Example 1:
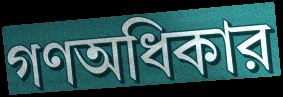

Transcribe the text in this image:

গণঅধিকার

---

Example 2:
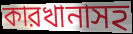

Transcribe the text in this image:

কারখানাসহ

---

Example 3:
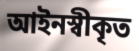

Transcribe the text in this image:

আইনস্বীকৃত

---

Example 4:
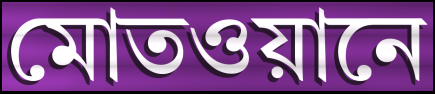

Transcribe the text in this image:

মোতওয়ানে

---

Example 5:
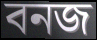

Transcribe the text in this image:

বনজ